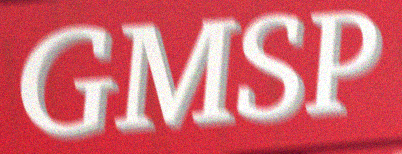
GMSP